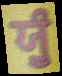
ਯੂੰ